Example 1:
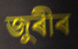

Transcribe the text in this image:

জুৰীৰ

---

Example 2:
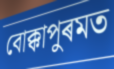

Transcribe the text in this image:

বোক্কাপুৰমত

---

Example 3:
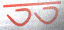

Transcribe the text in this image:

তত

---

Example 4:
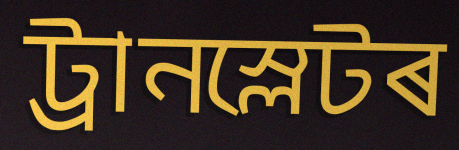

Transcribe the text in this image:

ট্ৰানস্লেটৰ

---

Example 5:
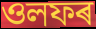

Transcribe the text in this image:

ওলফৰ